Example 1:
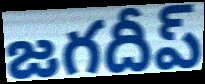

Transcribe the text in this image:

జగదీప్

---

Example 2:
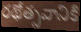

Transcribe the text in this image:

రథోత్సవానికి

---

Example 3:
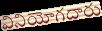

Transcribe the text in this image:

వినియోగదారు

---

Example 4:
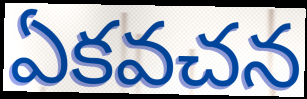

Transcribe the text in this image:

ఏకవచన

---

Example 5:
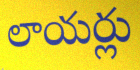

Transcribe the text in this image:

లాయర్లు